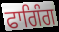
ਫਾਗਿੰਗ